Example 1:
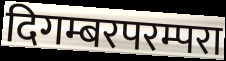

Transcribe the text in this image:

दिगम्बरपरम्परा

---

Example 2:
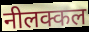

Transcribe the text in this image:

नीलक्कल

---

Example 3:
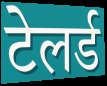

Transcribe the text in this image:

टेलर्ड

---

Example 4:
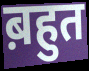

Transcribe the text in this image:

ब़हुत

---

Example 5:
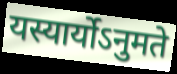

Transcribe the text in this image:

यस्यार्योऽनुमते